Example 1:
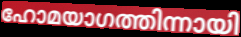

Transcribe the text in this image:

ഹോമയാഗത്തിന്നായി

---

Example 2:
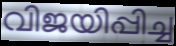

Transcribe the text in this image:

വിജയിപ്പിച്ച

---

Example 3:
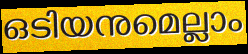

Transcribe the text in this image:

ഒടിയനുമെല്ലാം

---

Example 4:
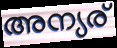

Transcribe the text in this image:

അന്യര്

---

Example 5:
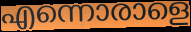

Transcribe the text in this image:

എന്നൊരാളെ